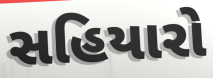
સહિયારો